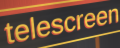
telescreen